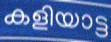
കളിയാട്ട